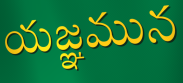
యజ్ఞమున